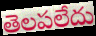
తెలపలేదు